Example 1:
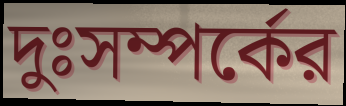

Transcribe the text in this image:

দুঃসম্পর্কের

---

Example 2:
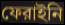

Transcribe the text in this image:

ফেরাইনি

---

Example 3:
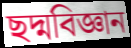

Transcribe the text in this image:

ছদ্মবিজ্ঞান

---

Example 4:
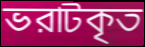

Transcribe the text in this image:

ভরাটকৃত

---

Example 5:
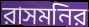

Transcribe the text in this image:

রাসমনির